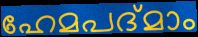
ഹേമപദ്മാം